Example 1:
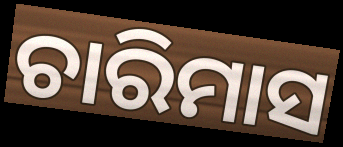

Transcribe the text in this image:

ଚାରିମାସ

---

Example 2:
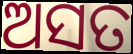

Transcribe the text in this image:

ଅସତ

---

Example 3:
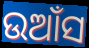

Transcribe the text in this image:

ଉଆଁସ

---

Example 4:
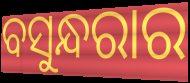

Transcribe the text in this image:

ବସୁନ୍ଧରାର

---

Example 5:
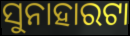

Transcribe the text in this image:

ସୁନାହାରଟା